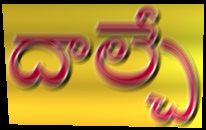
దాల్చే